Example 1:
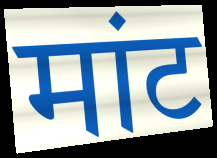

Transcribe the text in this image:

मांट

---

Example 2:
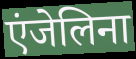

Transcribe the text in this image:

एंजेलिना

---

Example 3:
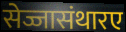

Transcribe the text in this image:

सेज्जासंथारए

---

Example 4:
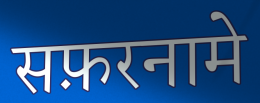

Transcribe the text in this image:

सफ़रनामे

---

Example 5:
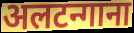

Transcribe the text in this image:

अलटन्गाना